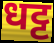
धट्ट